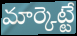
మార్కెట్టే